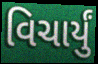
વિચાર્યું